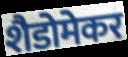
शैडोमेकर